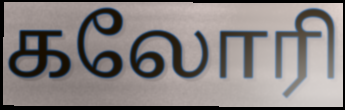
கலோரி